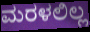
ಮರಳಲಿಲ್ಲ